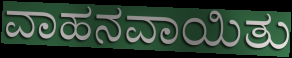
ವಾಹನವಾಯಿತು